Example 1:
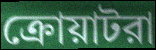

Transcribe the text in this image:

ক্রোয়াটরা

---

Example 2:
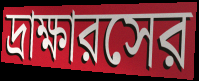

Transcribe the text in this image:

দ্রাক্ষারসের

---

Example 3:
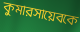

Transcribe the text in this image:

কুমারসায়েবকে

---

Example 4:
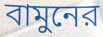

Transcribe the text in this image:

বামুনের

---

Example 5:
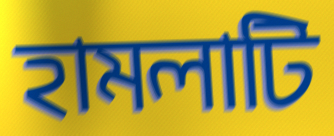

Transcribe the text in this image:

হামলাটি